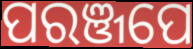
ପରଞ୍ଜପେ